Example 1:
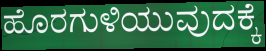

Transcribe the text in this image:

ಹೊರಗುಳಿಯುವುದಕ್ಕೆ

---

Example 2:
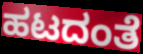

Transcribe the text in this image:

ಹಟದಂತೆ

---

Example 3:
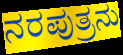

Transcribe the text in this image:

ನರಪುತ್ರನು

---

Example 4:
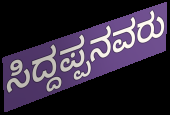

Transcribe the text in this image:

ಸಿದ್ದಪ್ಪನವರು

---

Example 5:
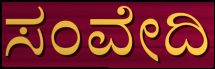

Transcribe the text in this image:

ಸಂವೇದಿ